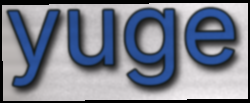
yuge